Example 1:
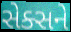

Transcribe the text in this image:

સેક્સને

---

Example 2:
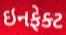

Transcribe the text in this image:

ઇનફેક્ટ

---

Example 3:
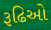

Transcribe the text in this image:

રૂઢિઓ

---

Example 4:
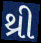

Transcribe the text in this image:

થ્રી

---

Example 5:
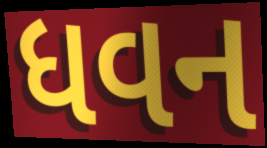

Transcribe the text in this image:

ધવન